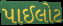
પાઈલોટ